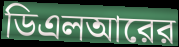
ডিএলআরের